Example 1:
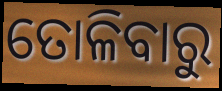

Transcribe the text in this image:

ତୋଳିବାରୁ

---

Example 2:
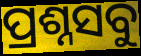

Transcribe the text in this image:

ପ୍ରଶ୍ନସବୁ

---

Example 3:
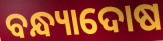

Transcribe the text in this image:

ବନ୍ଧ୍ୟାଦୋଷ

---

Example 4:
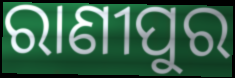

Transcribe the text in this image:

ରାଣୀପୁର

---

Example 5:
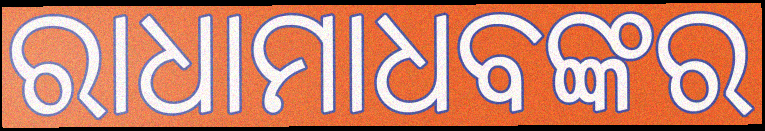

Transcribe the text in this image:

ରାଧାମାଧବଙ୍କର